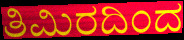
ತಿಮಿರದಿಂದ